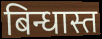
बिन्धास्त